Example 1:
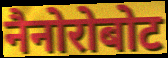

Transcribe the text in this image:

नैनोरोबोट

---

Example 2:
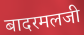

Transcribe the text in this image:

बादरमलजी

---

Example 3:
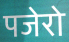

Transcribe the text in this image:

पजेरो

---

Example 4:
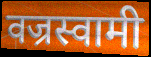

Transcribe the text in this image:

वज्रस्वामी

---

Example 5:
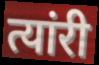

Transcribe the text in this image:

त्यांरी